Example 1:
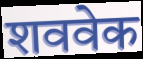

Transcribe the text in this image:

शववेक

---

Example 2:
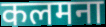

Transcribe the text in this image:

कलमना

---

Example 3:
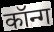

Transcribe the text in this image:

कॉन्ग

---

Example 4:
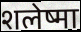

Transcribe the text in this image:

शलेष्मा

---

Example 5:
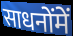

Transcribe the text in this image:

साधनोंमें